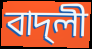
বাদ্‌লী